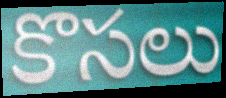
కొసలు